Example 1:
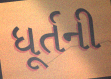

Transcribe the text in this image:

ધૂર્તની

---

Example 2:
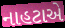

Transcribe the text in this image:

નાહટાએ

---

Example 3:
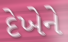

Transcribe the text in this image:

દેખેને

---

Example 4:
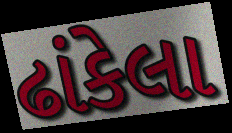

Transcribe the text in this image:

ઢાંકેલા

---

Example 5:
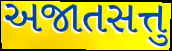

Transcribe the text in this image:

અજાતસત્તુ